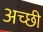
अच्‍छी